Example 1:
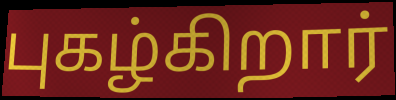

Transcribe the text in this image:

புகழ்கிறார்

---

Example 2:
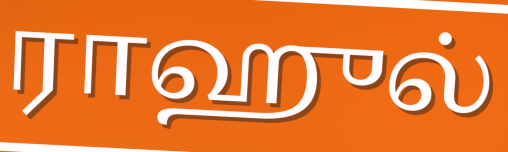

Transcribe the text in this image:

ராஹுல்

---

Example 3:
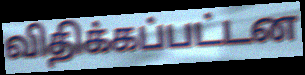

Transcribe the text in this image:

விதிக்கப்பட்டன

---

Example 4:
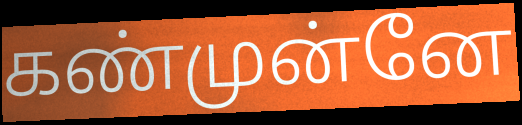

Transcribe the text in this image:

கண்முன்னே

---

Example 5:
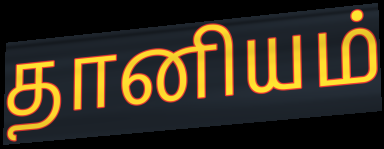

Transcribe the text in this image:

தானியம்